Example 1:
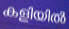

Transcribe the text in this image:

കളിയിൽ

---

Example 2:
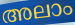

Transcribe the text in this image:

അലാം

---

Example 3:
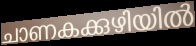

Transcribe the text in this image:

ചാണകക്കുഴിയിൽ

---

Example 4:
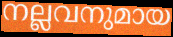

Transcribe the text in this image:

നല്ലവനുമായ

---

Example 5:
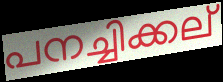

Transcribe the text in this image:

പനച്ചിക്കല്